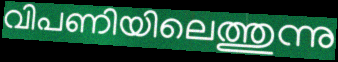
വിപണിയിലെത്തുന്നു